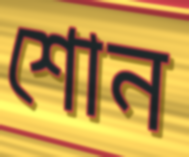
শোন